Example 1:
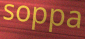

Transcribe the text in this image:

soppa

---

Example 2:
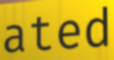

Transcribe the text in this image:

ated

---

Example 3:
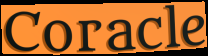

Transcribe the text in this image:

Coracle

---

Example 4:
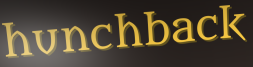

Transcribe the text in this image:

hunchback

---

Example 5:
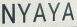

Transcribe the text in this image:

NYAYA